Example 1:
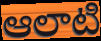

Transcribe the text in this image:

ఆలాటి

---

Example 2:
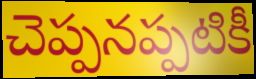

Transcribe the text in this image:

చెప్పనప్పటికీ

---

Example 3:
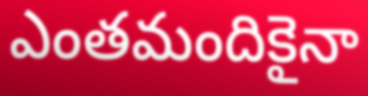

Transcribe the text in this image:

ఎంతమందికైనా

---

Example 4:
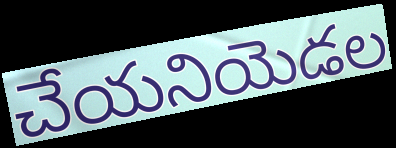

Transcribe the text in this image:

చేయనియెడల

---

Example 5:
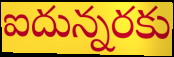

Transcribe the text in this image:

ఐదున్నరకు